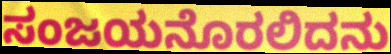
ಸಂಜಯನೊರಲಿದನು